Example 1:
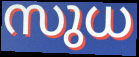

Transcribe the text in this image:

സുധ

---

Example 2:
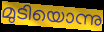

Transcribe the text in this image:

മുടിയൊന്നു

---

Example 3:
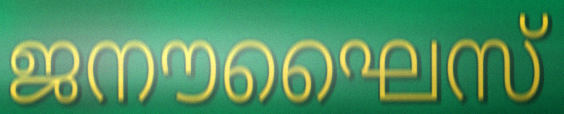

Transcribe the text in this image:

ജനൗഘൈസ്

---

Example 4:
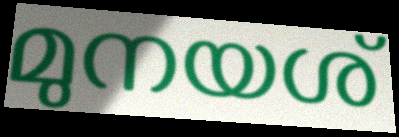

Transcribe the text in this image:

മുനയശ്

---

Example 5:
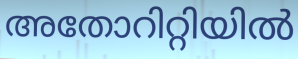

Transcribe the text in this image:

അതോറിറ്റിയിൽ